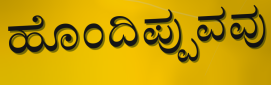
ಹೊಂದಿಪ್ಪುವವು